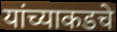
यांच्याकडचे